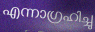
എന്നാഗ്രഹിച്ചു